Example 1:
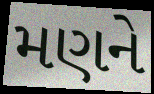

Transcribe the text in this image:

મણને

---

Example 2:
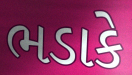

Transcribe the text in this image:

ભડાકે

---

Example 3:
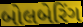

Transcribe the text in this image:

બોલબેરિંગ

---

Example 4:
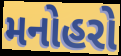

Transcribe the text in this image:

મનોહરો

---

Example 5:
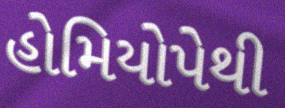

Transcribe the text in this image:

હોમિયોપેથી